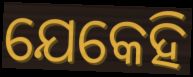
ଯେକେହି